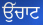
ਉੱਚਾਟ